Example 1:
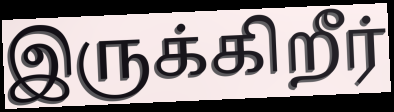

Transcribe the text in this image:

இருக்கிறீர்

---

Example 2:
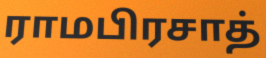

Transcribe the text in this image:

ராமபிரசாத்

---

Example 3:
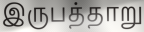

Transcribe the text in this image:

இருபத்தாறு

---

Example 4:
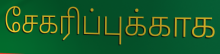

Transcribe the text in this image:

சேகரிப்புக்காக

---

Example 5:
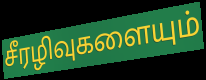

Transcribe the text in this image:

சீரழிவுகளையும்